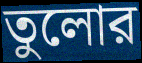
তুলোর